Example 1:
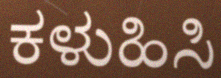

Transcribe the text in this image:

ಕಳುಹಿಸಿ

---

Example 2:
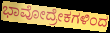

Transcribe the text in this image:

ಭಾವೋದ್ರೇಕಗಳಿಂದ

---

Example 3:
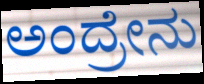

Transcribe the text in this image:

ಅಂದ್ರೇನು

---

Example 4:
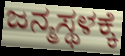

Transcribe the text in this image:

ಜನ್ಮಸ್ಥಳಕ್ಕೆ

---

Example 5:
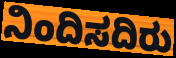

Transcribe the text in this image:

ನಿಂದಿಸದಿರು